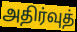
அதிர்வுத்